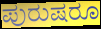
ಪುರುಷರೂ